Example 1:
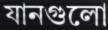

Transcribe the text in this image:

যানগুলো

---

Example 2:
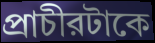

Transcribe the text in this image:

প্রাচীরটাকে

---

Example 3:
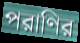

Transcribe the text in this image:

পরাণির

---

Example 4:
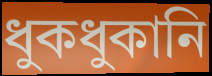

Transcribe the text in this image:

ধুকধুকানি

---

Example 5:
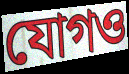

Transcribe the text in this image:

যোগও